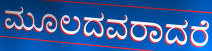
ಮೂಲದವರಾದರೆ